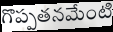
గొప్పతనమేంటి